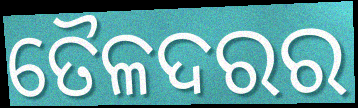
ତୈଳଦରର